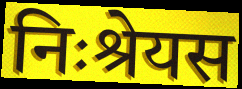
निःश्रेयस